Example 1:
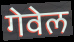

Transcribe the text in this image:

गेवेल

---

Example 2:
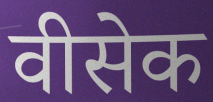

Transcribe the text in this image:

वीसेक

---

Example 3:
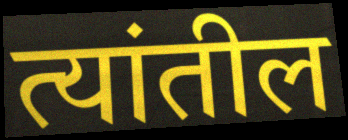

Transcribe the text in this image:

त्‍यांतील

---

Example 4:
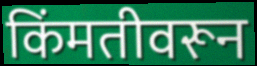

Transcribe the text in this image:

किंमतीवरून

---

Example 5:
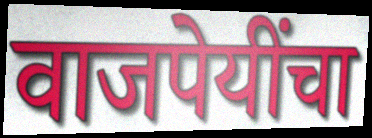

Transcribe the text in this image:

वाजपेयींचा